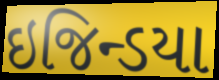
ઇજિન્ડયા